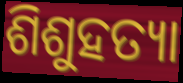
ଶିଶୁହତ୍ୟା